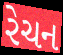
રેચન